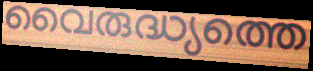
വൈരുദ്ധ്യത്തെ